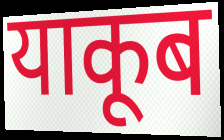
याकूब